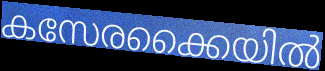
കസേരക്കൈയിൽ